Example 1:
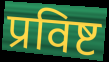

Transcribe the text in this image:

प्रविष्ट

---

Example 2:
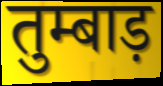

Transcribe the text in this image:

तुम्बाड़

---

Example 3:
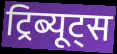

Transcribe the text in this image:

ट्रिब्यूट्स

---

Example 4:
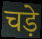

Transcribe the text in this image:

चड़े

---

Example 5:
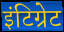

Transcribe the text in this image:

इंटिग्रेट